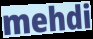
mehdi